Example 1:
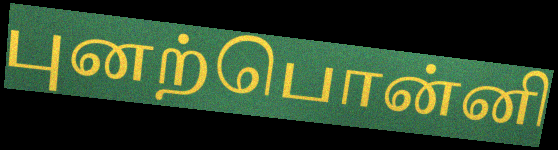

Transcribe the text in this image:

புனற்பொன்னி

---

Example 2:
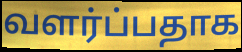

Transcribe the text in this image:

வளர்ப்பதாக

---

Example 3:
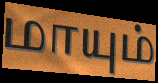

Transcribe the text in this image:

மாயும்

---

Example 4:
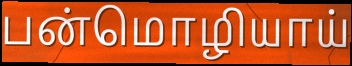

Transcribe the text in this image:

பன்மொழியாய்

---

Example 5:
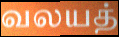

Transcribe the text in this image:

வலயத்